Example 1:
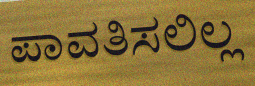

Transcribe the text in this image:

ಪಾವತಿಸಲಿಲ್ಲ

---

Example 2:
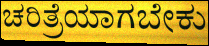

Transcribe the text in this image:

ಚರಿತ್ರೆಯಾಗಬೇಕು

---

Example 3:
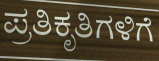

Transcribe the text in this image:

ಪ್ರತಿಕೃತಿಗಳಿಗೆ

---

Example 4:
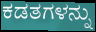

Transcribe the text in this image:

ಕಡತಗಳನ್ನು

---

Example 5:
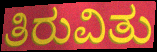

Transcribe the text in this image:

ತಿರುವಿತು